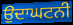
ਉਦਾਘਟਨੀ